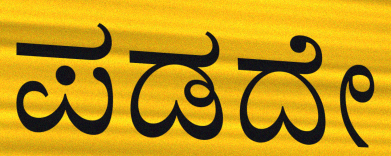
ಪಡದೇ